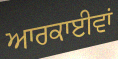
ਆਰਕਾਈਵਾਂ